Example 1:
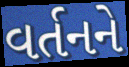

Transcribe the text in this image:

વર્તનને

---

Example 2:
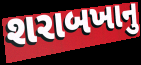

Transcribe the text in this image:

શરાબખાનુ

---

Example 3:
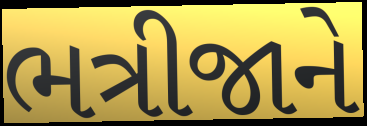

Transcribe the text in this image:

ભત્રીજાને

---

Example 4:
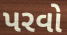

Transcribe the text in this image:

પરવો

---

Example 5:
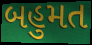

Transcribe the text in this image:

બહુમત